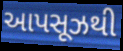
આપસૂઝથી